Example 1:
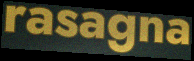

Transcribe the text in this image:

rasagna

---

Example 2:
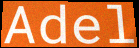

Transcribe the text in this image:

Adel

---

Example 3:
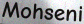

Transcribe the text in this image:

Mohseni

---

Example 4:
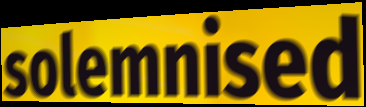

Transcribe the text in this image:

solemnised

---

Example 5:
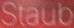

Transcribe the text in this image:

Staub